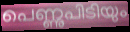
പെണ്ണുപിടിയും